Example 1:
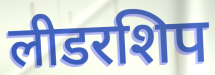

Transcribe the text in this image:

लीडरशिप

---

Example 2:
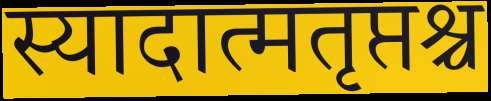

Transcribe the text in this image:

स्यादात्मतृप्तश्च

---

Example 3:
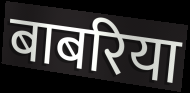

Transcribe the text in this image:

बाबरिया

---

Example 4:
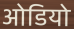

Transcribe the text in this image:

ओडियो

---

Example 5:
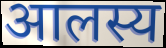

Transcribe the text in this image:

आलस्य